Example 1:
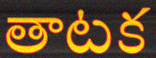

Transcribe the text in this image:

తాటక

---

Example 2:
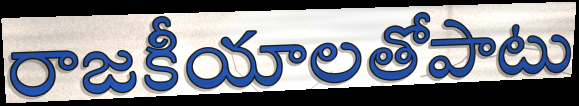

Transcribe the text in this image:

రాజకీయాలతోపాటు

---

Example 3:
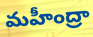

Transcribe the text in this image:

మహీంద్రా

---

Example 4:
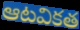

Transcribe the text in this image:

ఆటవికత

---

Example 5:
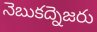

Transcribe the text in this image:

నెబుకద్నెజరు